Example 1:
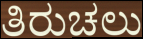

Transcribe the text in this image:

ತಿರುಚಲು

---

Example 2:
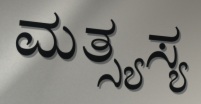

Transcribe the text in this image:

ಮತ್ಸ್ಯಸ್ಯ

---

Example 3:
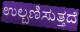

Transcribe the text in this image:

ಉಲ್ಬಣಿಸುತ್ತದೆ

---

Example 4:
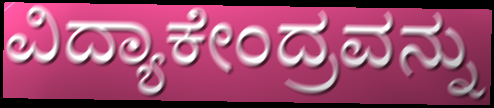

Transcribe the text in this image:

ವಿದ್ಯಾಕೇಂದ್ರವನ್ನು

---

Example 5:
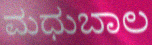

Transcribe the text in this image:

ಮಧುಬಾಲ